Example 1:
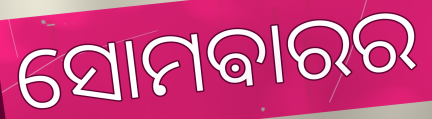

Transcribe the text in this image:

ସୋମଵାରର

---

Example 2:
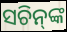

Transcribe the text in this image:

ସଚିନ୍‌ଙ୍କ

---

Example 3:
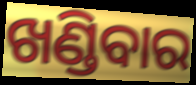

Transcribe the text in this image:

ଖଣ୍ଡିବାର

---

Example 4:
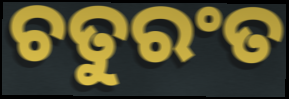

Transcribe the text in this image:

ଚତୁରଂତ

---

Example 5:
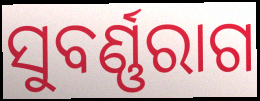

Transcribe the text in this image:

ସୁବର୍ଣ୍ଣରାଗ